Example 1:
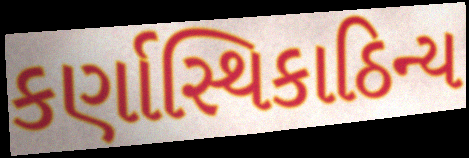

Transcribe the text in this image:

કર્ણાસ્થિકાઠિન્ય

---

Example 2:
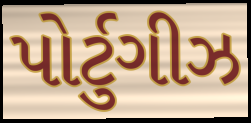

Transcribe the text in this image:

પોર્ટુગીઝ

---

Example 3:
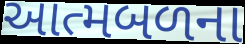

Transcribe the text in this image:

આત્મબળના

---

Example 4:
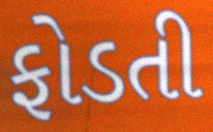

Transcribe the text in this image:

ફોડતી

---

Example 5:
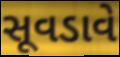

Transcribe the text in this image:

સૂવડાવે